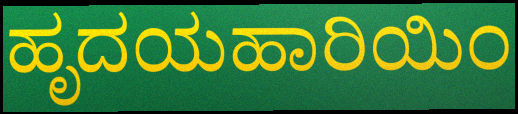
ಹೃದಯಹಾರಿಯಿಂ